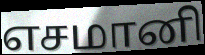
எசமானி